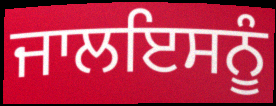
ਜਾਲਇਸਨੂੰ